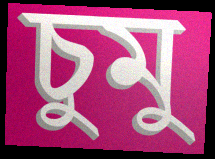
চুমু